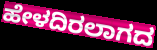
ಹೇಳದಿರಲಾಗದ